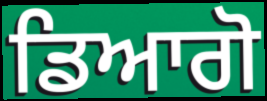
ਡਿਆਗੋ